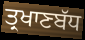
ਤ੍ਰਖਾਣਬੱਧ